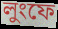
লুংফে